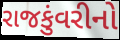
રાજકુંવરીનો